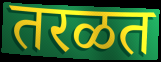
तरळत